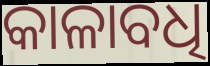
କାଳାବଧି